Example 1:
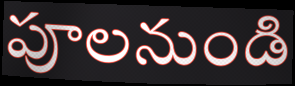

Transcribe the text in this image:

పూలనుండి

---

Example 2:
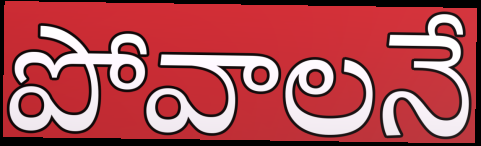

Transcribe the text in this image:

పోవాలనే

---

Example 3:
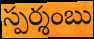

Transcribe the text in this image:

స్పర్శంబు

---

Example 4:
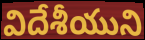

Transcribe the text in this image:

విదేశీయుని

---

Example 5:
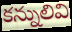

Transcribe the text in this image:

కన్నులివి